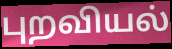
புறவியல்